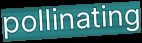
pollinating